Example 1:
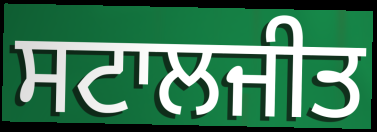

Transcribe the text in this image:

ਸਟਾਲਜੀਤ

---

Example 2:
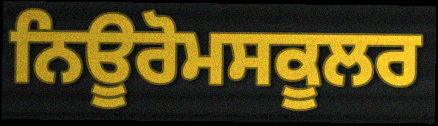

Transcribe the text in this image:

ਨਿਊਰੋਮਸਕੂਲਰ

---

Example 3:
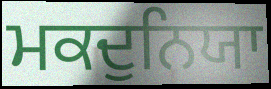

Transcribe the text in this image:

ਮਕਦੁਨਿਯਾ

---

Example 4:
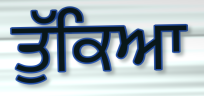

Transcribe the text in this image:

ਤੁੱਕਿਆ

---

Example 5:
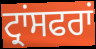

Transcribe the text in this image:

ਟ੍ਰਾਂਸਫਰਾਂ